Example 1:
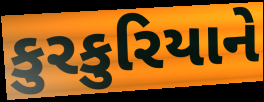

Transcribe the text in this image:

કુરકુરિયાને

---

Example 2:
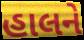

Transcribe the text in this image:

હાલને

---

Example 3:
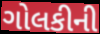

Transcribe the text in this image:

ગોલકીની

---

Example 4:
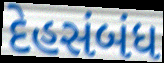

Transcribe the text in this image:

દેહસંબંધ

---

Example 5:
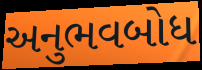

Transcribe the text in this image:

અનુભવબોધ